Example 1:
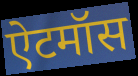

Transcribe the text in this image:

ऐटमॉस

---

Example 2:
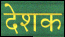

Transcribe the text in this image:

देशक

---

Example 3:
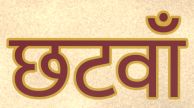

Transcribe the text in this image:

छटवाँ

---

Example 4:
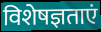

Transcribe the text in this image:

विशेषज्ञताएं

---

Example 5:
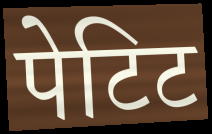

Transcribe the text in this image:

पेटिट